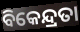
ବିକେନ୍ଦ୍ରତା